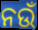
ନଉଁ